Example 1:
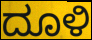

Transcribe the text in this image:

ದೂಳಿ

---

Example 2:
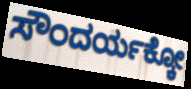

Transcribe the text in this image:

ಸೌಂದರ್ಯಕ್ಕೋ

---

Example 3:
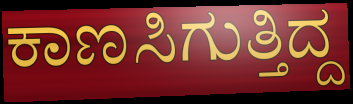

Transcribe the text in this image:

ಕಾಣಸಿಗುತ್ತಿದ್ದ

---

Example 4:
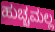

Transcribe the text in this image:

ಹುಚ್ಚಮಲ್ಲ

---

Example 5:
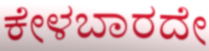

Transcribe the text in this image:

ಕೇಳಬಾರದೇ